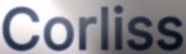
Corliss